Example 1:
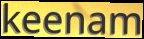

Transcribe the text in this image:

keenam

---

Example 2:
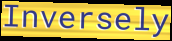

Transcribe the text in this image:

Inversely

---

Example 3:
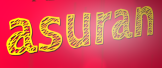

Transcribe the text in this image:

asuran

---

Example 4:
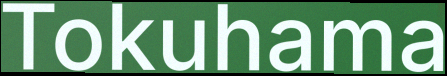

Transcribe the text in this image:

Tokuhama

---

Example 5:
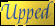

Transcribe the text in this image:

Upped